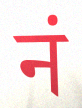
नं